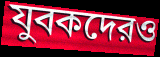
যুবকদেরও